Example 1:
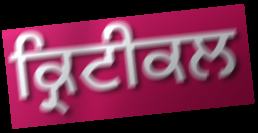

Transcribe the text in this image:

ਕ੍ਰਿਟੀਕਲ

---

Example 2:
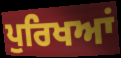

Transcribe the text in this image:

ਪੁਰਿਖਆਂ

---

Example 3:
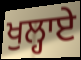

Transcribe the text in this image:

ਖੁਲ੍ਹਾਏ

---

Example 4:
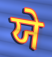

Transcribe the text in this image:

ਯੇ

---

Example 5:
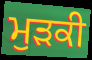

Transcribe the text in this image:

ਮੁੜਕੀ